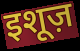
इशूज़